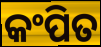
କଂପିତ